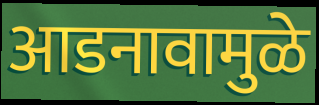
आडनावामुळे